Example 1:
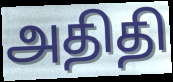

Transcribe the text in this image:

அதிதி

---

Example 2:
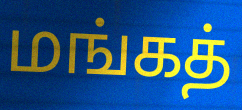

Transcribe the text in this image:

மங்கத்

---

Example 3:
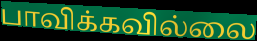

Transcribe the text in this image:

பாவிக்கவில்லை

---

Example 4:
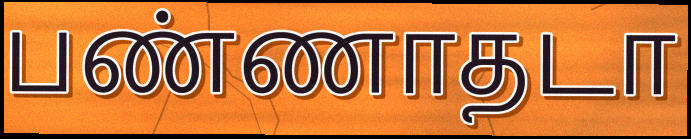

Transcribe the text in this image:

பண்ணாதடா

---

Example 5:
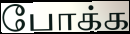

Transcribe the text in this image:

போக்க